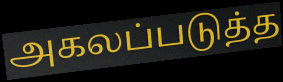
அகலப்படுத்த